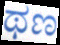
ಥಣ